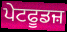
ਪੇਟਫੂਡਜ਼